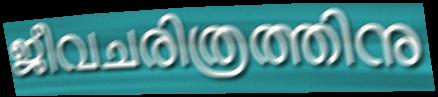
ജീവചരിത്രത്തിനു